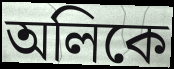
অলিকে